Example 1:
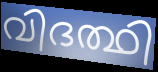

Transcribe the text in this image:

വിദത്ഥി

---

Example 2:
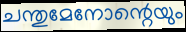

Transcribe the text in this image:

ചന്തുമേനോന്റെയും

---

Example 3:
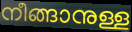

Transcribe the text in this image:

നീങ്ങാനുള്ള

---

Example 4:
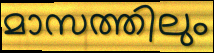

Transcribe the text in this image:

മാസത്തിലും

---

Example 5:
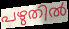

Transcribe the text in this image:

പഴുതിൽ